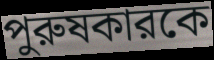
পুরুষকারকে